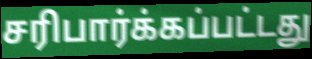
சரிபார்க்கப்பட்டது